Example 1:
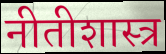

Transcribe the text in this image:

नीतीशास्त्र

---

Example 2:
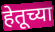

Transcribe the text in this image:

हेतूच्या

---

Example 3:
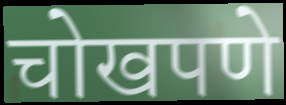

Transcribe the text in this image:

चोखपणे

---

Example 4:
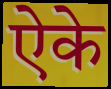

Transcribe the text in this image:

ऐके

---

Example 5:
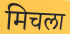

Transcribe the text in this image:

मिचला